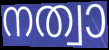
നത്വാ